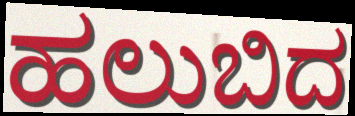
ಹಲುಬಿದ